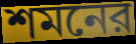
শমনের